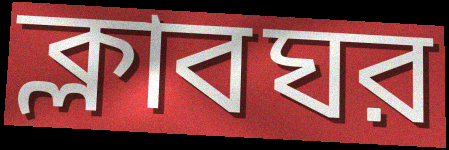
ক্লাবঘর